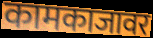
कामकाजावर